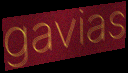
gavias